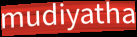
mudiyatha